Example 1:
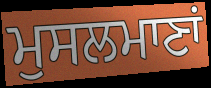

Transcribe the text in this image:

ਮੁਸਲਮਾਣਾਂ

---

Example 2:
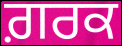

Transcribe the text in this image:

ਗ਼ਰਕ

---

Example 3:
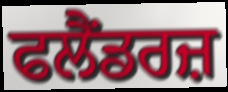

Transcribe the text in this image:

ਫਲੈਂਡਰਜ਼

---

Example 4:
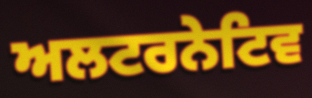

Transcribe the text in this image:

ਅਲਟਰਨੇਟਿਵ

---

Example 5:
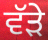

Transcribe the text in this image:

ਵੱਡ਼ੇ